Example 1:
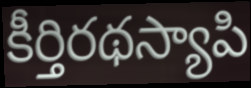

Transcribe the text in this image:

కీర్తిరథస్యాపి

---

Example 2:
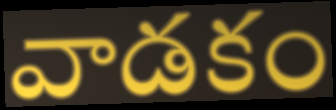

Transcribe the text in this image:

వాడకం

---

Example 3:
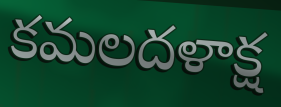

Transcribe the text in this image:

కమలదళాక్ష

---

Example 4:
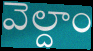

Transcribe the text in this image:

వెల్దాం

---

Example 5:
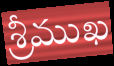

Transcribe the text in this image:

శ్రీముఖ